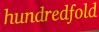
hundredfold